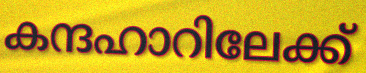
കന്ദഹാറിലേക്ക്